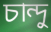
চান্দু